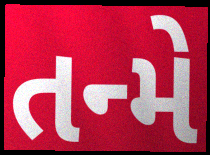
તન્મે